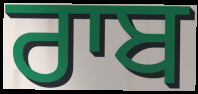
ਰਾਬ